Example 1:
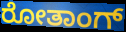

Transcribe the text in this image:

ರೋತಾಂಗ್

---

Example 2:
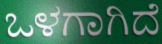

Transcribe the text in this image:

ಒಳಗಾಗಿದೆ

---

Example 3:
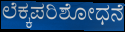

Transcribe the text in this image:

ಲೆಕ್ಕಪರಿಶೋಧನೆ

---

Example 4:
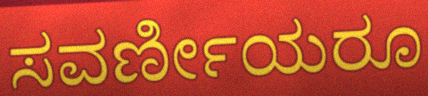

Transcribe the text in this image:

ಸವರ್ಣೀಯರೂ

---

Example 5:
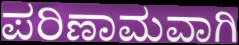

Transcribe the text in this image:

ಪರಿಣಾಮವಾಗಿ